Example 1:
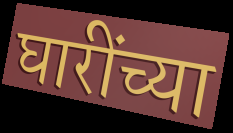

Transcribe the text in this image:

घारींच्या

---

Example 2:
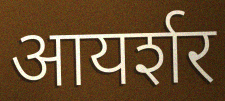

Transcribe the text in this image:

आयर्शर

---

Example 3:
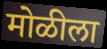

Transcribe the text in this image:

मोळीला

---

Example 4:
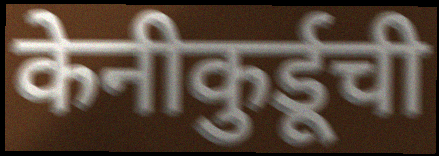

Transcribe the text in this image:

केनीकुर्डूची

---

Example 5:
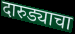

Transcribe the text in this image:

दारुड्याचा